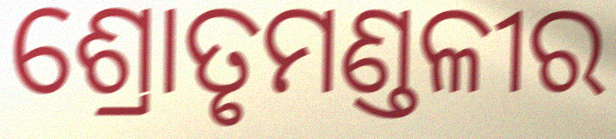
ଶ୍ରୋତୃମଣ୍ଡଳୀର